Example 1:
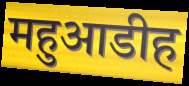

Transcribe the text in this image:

महुआडीह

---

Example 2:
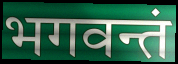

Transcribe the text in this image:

भगवन्तं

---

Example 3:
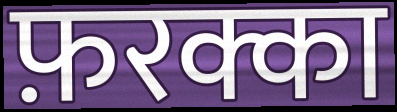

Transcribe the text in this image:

फ़रक्का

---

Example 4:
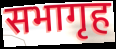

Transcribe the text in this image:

सभागृह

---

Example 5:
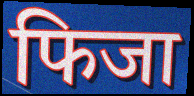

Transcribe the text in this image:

फिजा